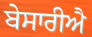
ਬੇਸਾਰੀਐ